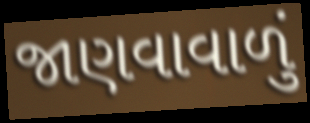
જાણવાવાળું